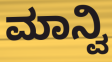
ಮಾನ್ವಿ